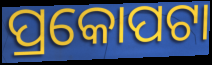
ପ୍ରକୋପଟା